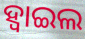
ହ୍ବାଇଲ